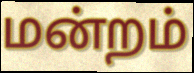
மன்றம்